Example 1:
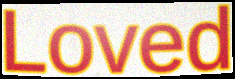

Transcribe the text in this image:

Loved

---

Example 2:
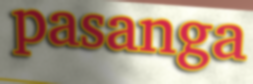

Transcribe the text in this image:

pasanga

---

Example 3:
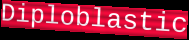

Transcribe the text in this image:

Diploblastic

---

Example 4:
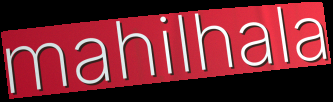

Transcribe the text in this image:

mahilhala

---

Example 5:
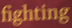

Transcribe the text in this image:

fighting